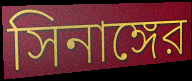
সিনাঙ্গের